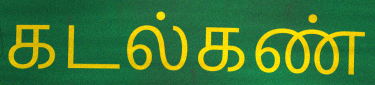
கடல்கண்